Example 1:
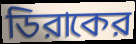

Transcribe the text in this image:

ডিরাকের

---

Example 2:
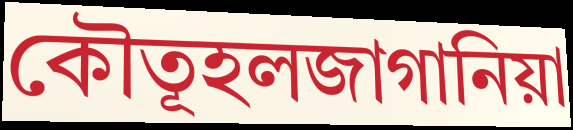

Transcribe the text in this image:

কৌতূহলজাগানিয়া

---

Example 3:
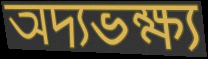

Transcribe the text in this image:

অদ্যভক্ষ্য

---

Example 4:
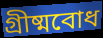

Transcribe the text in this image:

গ্রীষ্মবোধ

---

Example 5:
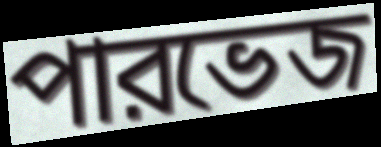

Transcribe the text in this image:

পারভেজ